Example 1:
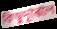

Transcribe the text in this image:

কিছুদূৰৈলৈ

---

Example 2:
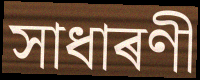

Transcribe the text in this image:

সাধাৰণী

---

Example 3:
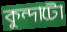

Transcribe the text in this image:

কুন্দাটো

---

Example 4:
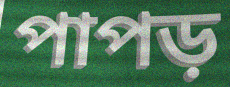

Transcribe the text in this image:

পাপড়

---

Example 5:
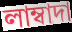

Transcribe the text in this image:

লাম্বাদা